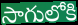
సాగులోకి